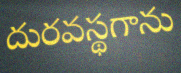
దురవస్థగాను